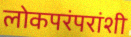
लोकपरंपरांशी